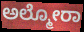
ಅಲ್ಮೋರಾ